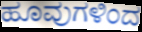
ಹೂವುಗಳಿಂದ